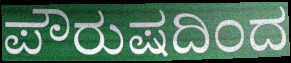
ಪೌರುಷದಿಂದ